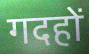
गदहों